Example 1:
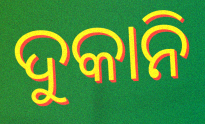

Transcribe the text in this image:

ଦୁକାନି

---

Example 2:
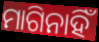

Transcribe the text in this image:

ମାଗିନାହିଁ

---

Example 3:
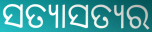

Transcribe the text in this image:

ସତ୍ୟାସତ୍ୟର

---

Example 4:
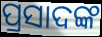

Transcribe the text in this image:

ପ୍ରସାଦଙ୍କ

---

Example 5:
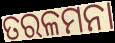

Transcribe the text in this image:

ତରଳମନା